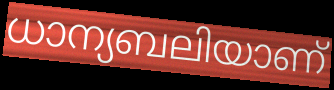
ധാന്യബലിയാണ്